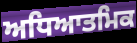
ਅਧਿਆਤਮਿਕ